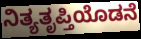
ನಿತ್ಯತೃಪ್ತಿಯೊಡನೆ